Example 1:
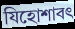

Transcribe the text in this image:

যিহোশাবৎ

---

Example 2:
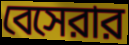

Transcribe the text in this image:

বেসেরার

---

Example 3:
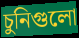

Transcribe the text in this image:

চুনিগুলো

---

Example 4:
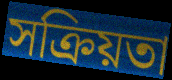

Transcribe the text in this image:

সক্রিয়তা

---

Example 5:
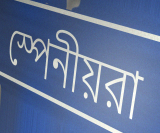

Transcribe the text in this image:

স্পেনীয়রা